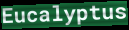
Eucalyptus